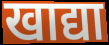
खाद्या